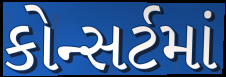
કોન્સર્ટમાં